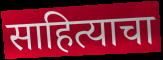
साहित्याचा